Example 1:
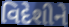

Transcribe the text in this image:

વિદેશીને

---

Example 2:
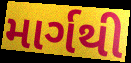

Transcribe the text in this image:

માર્ગથી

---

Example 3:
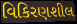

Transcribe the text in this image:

વિકિરણશીલ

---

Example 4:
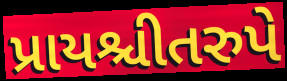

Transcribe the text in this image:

પ્રાયશ્ચીતરુપે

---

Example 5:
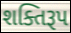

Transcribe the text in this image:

શક્તિરૂપ